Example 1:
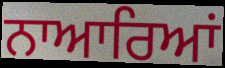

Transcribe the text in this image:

ਨਾਆਰਿਆਂ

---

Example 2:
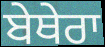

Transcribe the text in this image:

ਬੇਥੇਰਾ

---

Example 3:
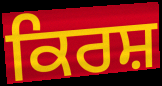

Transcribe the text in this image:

ਕਿਰਸ਼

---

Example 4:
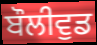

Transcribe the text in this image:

ਬੌਲੀਵੁਡ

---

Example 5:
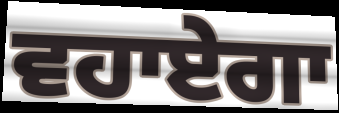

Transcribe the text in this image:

ਵਹਾਏਗਾ